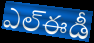
ఎల్ఈడీ